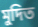
মুদিত